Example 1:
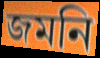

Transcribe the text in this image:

জমনি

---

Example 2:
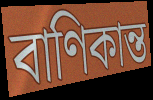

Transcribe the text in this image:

বাণিকান্ত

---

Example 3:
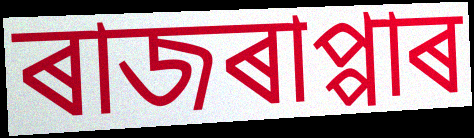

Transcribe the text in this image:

ৰাজৰাপ্পাৰ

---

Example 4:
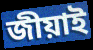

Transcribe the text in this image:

জীয়াই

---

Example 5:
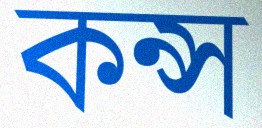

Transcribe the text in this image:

কন্স